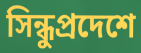
সিন্ধুপ্রদেশে